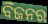
ବିଜନର